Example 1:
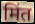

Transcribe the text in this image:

मिंत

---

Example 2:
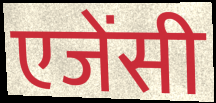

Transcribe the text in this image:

एजेंसी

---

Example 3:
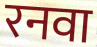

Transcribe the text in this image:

रनवा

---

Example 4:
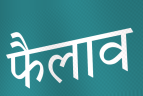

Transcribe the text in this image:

फैलाव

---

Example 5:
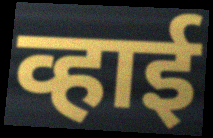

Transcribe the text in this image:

व्हाई